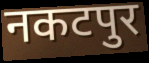
नकटपुर